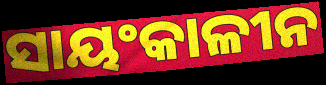
ସାୟଂକାଳୀନ